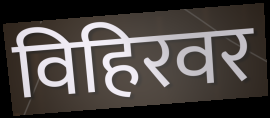
विहिरवर